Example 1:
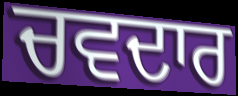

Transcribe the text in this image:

ਚਵਦਾਰ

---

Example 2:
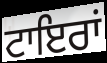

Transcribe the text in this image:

ਟਾਇਰਾਂ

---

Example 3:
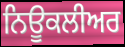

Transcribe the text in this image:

ਨਿਊਕਲੀਅਰ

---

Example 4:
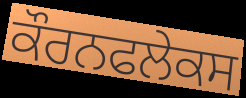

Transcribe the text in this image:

ਕੌਰਨਫਲੇਕਸ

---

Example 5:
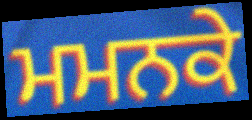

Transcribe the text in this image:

ਮਮਨਕੇ